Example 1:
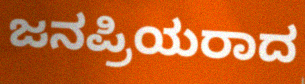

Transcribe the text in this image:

ಜನಪ್ರಿಯರಾದ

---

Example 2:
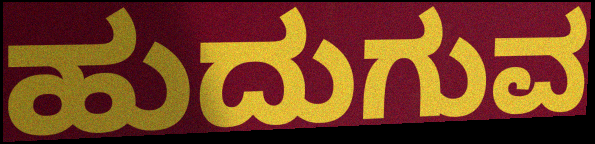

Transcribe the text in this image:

ಹುದುಗುವ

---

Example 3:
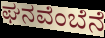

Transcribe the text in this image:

ಘನವೆಂಬೆನೆ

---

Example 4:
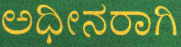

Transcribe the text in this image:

ಅಧೀನರಾಗಿ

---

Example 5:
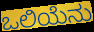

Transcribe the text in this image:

ಒಲಿಯೆನು